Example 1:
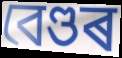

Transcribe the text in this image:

বেণ্ডৰ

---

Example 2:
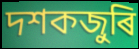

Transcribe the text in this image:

দশকজুৰি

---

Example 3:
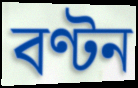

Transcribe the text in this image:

বণ্টন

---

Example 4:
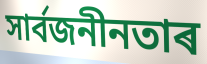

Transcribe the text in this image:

সাৰ্বজনীনতাৰ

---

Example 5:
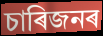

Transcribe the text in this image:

চাৰিজনৰ